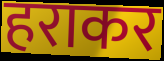
हराकर